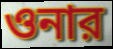
ওনার